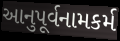
આનુપૂર્વનામકર્મ